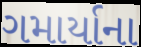
ગમાર્યાના